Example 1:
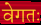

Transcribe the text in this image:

वेगतः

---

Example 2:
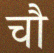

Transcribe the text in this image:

चौ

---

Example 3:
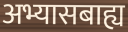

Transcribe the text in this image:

अभ्यासबाह्य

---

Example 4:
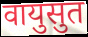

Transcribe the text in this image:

वायुसुत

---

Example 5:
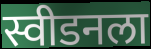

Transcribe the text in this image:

स्वीडनला